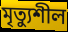
মৃত্যুশীল